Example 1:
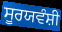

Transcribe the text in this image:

ਸੂਰਯਵੰਸ਼ੀ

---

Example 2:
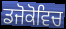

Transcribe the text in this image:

ਡਜੋਕੋਵਿਚ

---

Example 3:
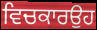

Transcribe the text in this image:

ਵਿਚਕਾਰਉਹ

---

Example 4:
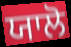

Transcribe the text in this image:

ਯਾਲੋ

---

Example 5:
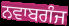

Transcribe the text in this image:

ਨਵਾਬਗੰਜ